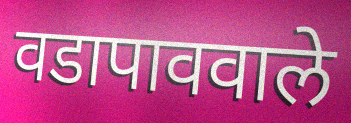
वडापाववाले